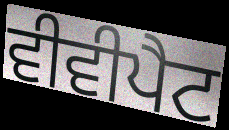
ਵੀਵੀਪੈਟ